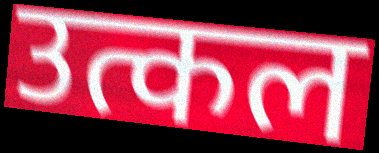
उत्कल